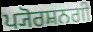
ਪ੍ਯੋਰਸ਼ਨਗੀ